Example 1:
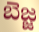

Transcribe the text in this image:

బెజ్జ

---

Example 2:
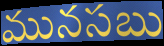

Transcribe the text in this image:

మునసబు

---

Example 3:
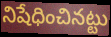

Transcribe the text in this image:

నిషేధించినట్టు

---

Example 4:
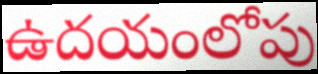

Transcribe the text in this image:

ఉదయంలోపు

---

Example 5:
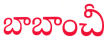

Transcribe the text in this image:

బాబాంచీ